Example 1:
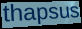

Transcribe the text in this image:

thapsus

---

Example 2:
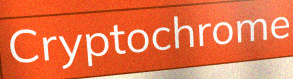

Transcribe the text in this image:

Cryptochrome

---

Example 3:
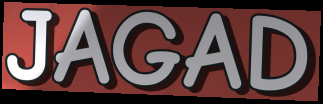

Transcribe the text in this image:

JAGAD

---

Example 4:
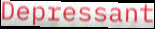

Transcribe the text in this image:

Depressant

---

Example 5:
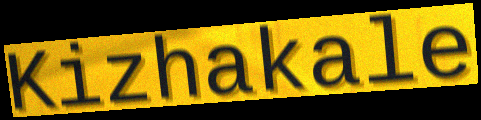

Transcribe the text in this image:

Kizhakale